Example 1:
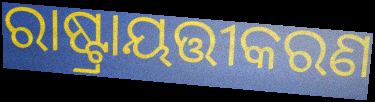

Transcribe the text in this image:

ରାଷ୍ଟ୍ରାୟତ୍ତୀକରଣ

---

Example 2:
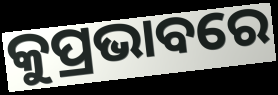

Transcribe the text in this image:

କୁପ୍ରଭାବରେ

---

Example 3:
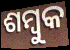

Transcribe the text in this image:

ଶମ୍ବୁକ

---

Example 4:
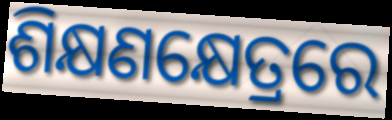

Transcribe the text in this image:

ଶିକ୍ଷଣକ୍ଷେତ୍ରରେ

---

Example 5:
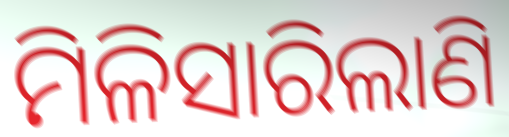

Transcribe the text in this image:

ମିଳିସାରିଲାଣି